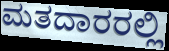
ಮತದಾರರಲ್ಲಿ